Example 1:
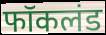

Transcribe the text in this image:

फॉकलंड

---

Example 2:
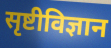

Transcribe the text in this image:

सृष्टीविज्ञान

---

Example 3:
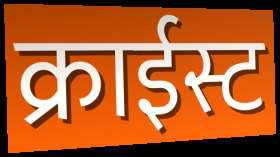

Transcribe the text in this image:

क्राईस्ट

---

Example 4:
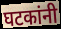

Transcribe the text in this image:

घटकांनी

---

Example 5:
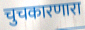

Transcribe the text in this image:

चुचकारणारा